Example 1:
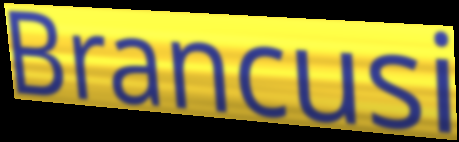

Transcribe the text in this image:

Brancusi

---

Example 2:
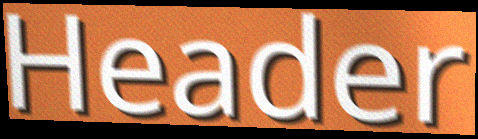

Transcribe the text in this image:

Header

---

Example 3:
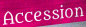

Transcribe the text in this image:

Accession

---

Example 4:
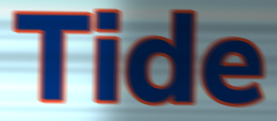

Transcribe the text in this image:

Tide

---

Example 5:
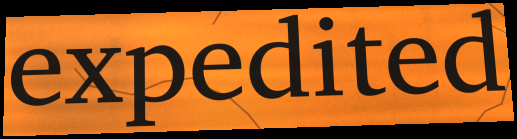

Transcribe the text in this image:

expedited